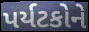
પર્યટકોને